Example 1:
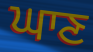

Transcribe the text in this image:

ਘਾਣ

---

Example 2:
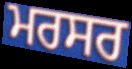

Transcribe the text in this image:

ਮਰਸਰ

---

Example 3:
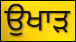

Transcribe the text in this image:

ਉਖਾੜ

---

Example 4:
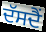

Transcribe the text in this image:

ਦੱਸਦੈਂ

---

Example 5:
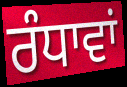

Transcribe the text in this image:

ਰੰਧਾਵਾਂ